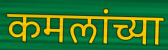
कमलांच्या